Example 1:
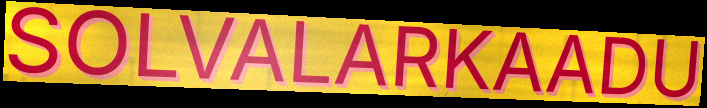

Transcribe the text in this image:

SOLVALARKAADU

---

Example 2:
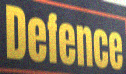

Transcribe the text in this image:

Defence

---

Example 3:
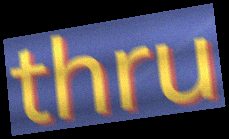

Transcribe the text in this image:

thru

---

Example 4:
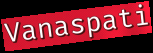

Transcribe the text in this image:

Vanaspati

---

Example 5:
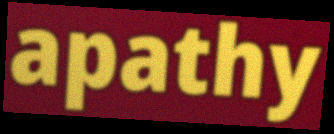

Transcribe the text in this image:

apathy